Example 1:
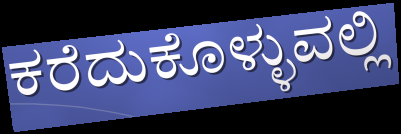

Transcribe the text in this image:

ಕರೆದುಕೊಳ್ಳುವಲ್ಲಿ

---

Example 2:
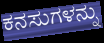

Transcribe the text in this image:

ಕನಸುಗಳನ್ನು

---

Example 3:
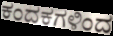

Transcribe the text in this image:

ಕಂದಕಗಳಿಂದ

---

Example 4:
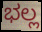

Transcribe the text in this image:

ಭಲ್ಲ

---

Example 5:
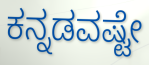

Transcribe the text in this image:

ಕನ್ನಡವಷ್ಟೇ